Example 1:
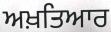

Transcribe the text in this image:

ਅਖ਼ਤਿਆਰ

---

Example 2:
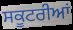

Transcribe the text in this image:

ਸਕੂਟਰੀਆਂ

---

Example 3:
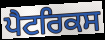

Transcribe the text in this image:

ਪੈਟਰਿਕਸ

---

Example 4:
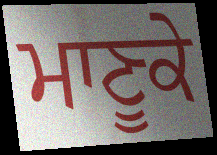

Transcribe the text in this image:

ਮਾਣੂਕੇ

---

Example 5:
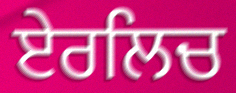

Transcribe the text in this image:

ਏਰਲਿਚ